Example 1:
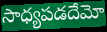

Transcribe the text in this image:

సాధ్యపడదేమో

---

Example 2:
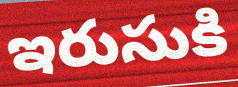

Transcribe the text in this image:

ఇరుసుకి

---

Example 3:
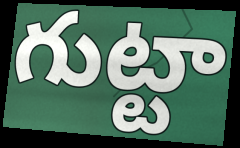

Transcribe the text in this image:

గుట్టా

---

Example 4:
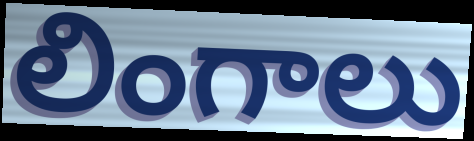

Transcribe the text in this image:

లింగాలు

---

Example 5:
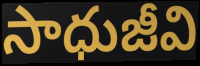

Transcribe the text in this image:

సాధుజీవి